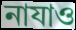
নাযাও